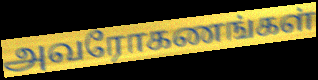
அவரோகணங்கள்